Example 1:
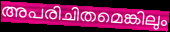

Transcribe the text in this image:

അപരിചിതമെങ്കിലും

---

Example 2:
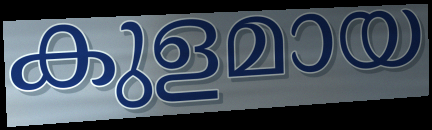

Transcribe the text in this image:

കുളമായ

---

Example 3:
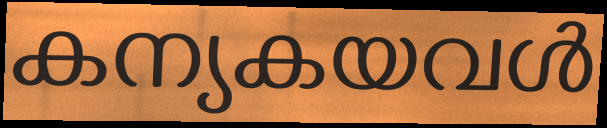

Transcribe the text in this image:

കന്യകയവൾ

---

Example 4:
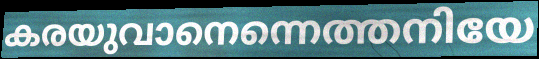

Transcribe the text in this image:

കരയുവാനെന്നെത്തനിയേ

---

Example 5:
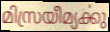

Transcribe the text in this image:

മിസ്രയീമ്യൎക്കു